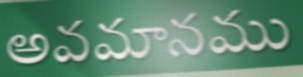
అవమానము